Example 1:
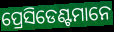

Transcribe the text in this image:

ପ୍ରେସିଡେଣ୍ଟମାନେ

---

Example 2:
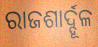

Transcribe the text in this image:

ରାଜଶାର୍ଦ୍ଦୂଳ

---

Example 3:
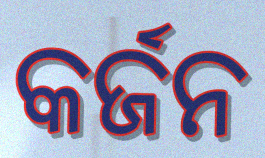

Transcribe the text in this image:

କର୍ଜନ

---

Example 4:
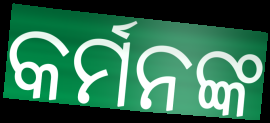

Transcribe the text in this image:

କର୍ମନଙ୍କ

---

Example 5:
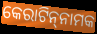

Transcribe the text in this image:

କେରାଟିନ୍‌ନାମକ